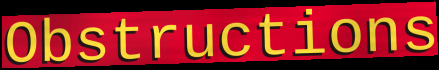
Obstructions